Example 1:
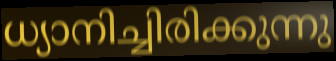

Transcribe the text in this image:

ധ്യാനിച്ചിരിക്കുന്നു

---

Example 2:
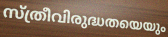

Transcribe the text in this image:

സ്ത്രീവിരുദ്ധതയെയും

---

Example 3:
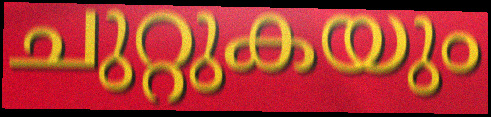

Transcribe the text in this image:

ചുറ്റുകയും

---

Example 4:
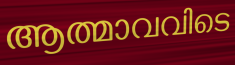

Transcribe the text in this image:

ആത്മാവവിടെ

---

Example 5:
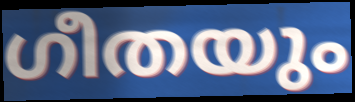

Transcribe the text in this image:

ഗീതയും